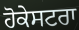
ਹੋਕੇਸਟਰਾ